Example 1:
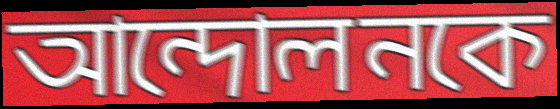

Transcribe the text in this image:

আন্দোলনকে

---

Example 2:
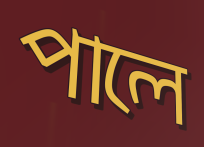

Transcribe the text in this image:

পালে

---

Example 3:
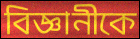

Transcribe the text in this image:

বিজ্ঞানীকে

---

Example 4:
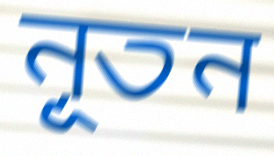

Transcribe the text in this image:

নূতন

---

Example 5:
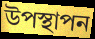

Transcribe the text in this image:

উপস্থাপন